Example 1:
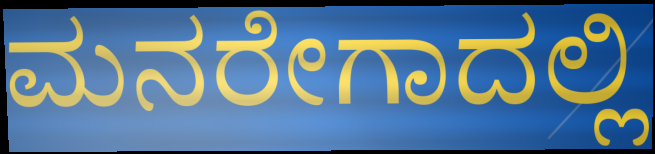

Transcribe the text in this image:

ಮನರೇಗಾದಲ್ಲಿ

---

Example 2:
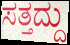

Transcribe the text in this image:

ಸತ್ತದ್ದು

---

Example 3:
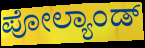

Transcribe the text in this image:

ಪೋಲ್ಯಾಂಡ್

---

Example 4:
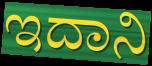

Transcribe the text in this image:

ಇದಾನಿ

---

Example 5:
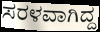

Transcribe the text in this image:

ಸರಳವಾಗಿದ್ದ